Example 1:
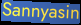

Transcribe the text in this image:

Sannyasin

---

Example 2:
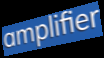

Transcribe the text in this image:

amplifier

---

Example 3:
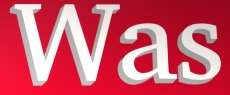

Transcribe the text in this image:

Was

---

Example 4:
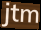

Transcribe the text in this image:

jtm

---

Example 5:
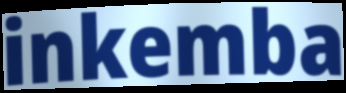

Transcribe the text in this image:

inkemba